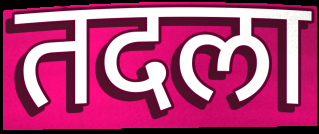
तदला